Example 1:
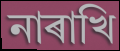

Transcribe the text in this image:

নাৰাখি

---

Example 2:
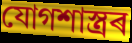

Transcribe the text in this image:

যোগশাস্ত্ৰৰ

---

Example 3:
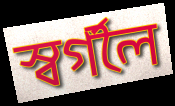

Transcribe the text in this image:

স্বৰ্গলৈ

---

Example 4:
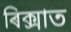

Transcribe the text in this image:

ৰিক্সাত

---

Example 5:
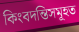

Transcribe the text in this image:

কিংবদন্তিসমূহত